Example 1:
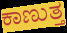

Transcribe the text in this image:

ಕಾಣುತ್ತ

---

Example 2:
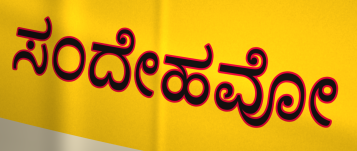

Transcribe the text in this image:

ಸಂದೇಹವೋ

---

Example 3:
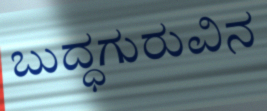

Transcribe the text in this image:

ಬುದ್ಧಗುರುವಿನ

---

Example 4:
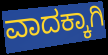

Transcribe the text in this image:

ವಾದಕ್ಕಾಗಿ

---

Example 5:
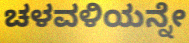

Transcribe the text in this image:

ಚಳವಳಿಯನ್ನೇ